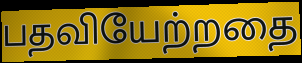
பதவியேற்றதை